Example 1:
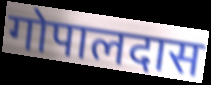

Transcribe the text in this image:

गोपालदास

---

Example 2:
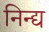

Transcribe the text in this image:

निन्द्य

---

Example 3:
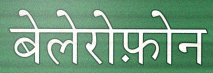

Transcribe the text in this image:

बेलेरोफ़ोन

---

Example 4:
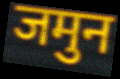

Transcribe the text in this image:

जमुन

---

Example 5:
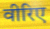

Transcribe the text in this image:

वीरिए